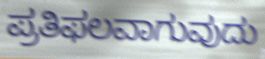
ಪ್ರತಿಫಲವಾಗುವುದು